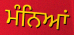
ਮੰਨਿਆਂ